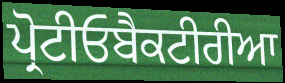
ਪ੍ਰੋਟੀਓਬੈਕਟੀਰੀਆ